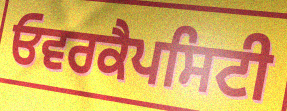
ਓਵਰਕੈਪਸਿਟੀ